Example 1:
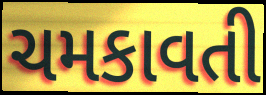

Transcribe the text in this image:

ચમકાવતી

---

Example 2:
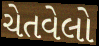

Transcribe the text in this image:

ચેતવેલો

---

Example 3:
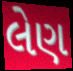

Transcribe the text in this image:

લેણ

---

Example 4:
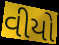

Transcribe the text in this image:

વીયો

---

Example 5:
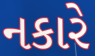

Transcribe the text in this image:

નકારે